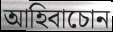
আহিবাচোন